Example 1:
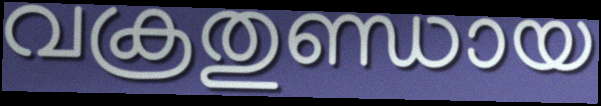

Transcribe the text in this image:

വക്രതുണ്ഡായ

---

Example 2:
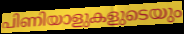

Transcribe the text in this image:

പിണിയാളുകളുടെയും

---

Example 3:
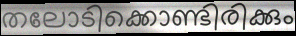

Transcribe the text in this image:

തലോടിക്കൊണ്ടിരിക്കും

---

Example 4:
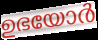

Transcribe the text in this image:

ഉഭയോർ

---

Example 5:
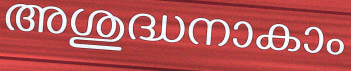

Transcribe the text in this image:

അശുദ്ധനാകാം